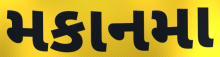
મકાનમા